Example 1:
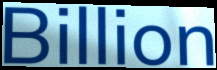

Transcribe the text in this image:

Billion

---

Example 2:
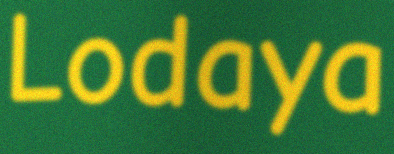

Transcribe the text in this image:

Lodaya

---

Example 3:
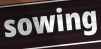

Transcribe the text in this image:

sowing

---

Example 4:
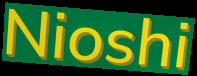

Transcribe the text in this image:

Nioshi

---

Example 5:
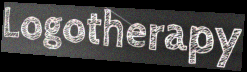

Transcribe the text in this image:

Logotherapy